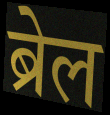
ब्रेल